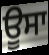
ਊਸਾ